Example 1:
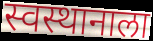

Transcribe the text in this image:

स्वस्थानाला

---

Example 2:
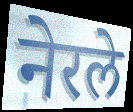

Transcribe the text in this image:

नेरले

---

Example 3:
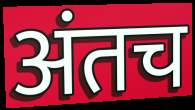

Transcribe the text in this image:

अंतच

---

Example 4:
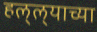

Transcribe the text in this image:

हल्ल्याच्या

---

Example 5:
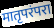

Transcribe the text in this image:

मातृपरंपरा